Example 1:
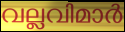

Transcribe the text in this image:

വല്ലവിമാർ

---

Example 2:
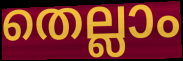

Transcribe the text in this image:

തെല്ലാം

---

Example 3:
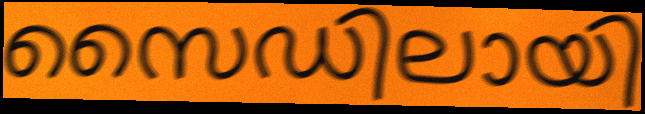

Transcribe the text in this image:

സൈഡിലായി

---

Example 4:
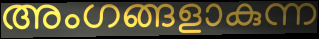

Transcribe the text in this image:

അംഗങ്ങളാകുന്ന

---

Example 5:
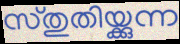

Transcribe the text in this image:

സ്തുതിയ്ക്കുന്ന